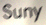
Suny